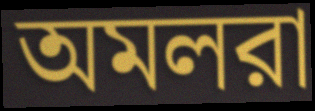
অমলরা